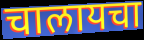
चालायचा